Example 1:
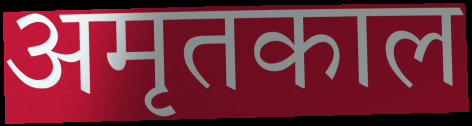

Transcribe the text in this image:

अमृतकाल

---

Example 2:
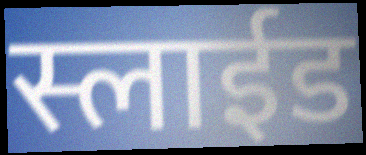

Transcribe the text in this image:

स्लाईड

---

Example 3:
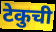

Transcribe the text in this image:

टेकुची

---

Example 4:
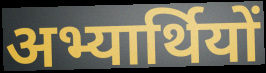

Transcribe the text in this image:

अभ्यार्थियों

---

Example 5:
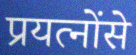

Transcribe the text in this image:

प्रयत्नोंसे